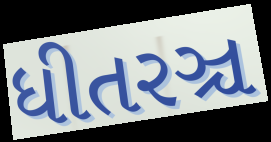
ધીતરઞ્ચ